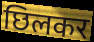
छिलकर